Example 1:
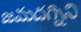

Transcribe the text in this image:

జమదగ్నిని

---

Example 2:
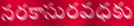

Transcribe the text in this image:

నరకాసురవధకు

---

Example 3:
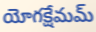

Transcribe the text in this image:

యోగక్షేమమ్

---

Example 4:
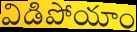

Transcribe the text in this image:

విడిపోయాం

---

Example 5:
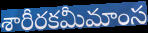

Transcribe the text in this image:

శారీరకమీమాంస